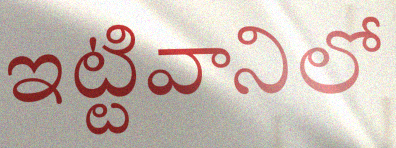
ఇట్టివానిలో